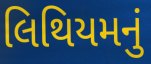
લિથિયમનું